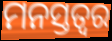
ମନସ୍ତତ୍ଵର